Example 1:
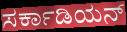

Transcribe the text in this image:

ಸರ್ಕಾಡಿಯನ್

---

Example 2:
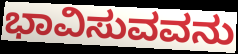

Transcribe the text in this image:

ಭಾವಿಸುವವನು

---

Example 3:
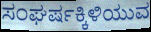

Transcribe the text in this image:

ಸಂಘರ್ಷಕ್ಕಿಳಿಯುವ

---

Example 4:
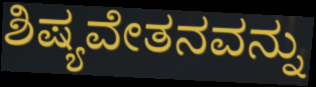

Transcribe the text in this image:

ಶಿಷ್ಯವೇತನವನ್ನು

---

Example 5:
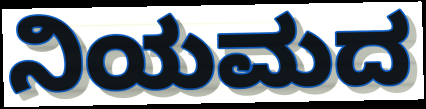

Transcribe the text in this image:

ನಿಯಮದ